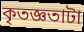
কৃতজ্ঞতাটা